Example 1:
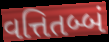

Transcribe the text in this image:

વત્તિતબ્બં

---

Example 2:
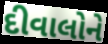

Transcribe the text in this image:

દીવાલોને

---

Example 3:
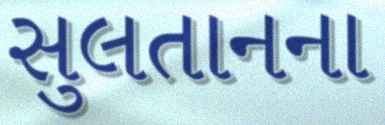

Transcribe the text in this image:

સુલતાનના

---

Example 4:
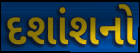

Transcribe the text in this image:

દશાંશનો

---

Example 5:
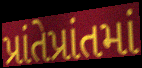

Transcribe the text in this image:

પ્રાંતેપ્રાંતમાં